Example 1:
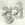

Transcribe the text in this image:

સુરો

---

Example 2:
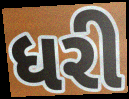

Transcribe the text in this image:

ધરી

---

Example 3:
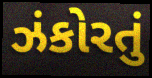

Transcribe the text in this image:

ઝંકોરતું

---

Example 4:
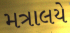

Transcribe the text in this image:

મત્રાલયે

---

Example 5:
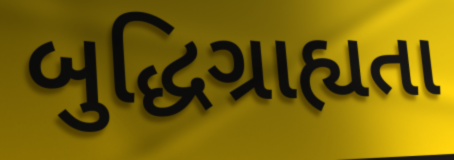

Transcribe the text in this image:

બુદ્ધિગ્રાહ્યતા